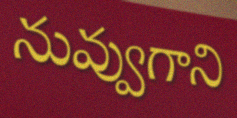
నువ్వుగాని